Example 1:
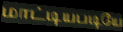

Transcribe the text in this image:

மாட்டியபடியே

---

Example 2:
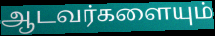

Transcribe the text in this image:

ஆடவர்களையும்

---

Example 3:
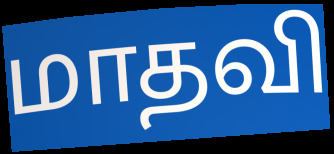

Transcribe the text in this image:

மாதவி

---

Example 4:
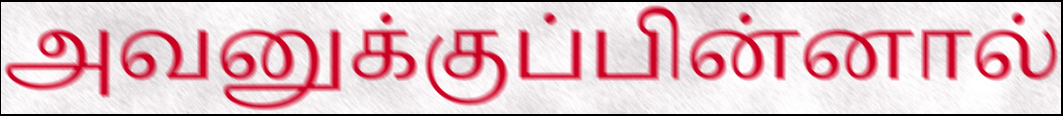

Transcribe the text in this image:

அவனுக்குப்பின்னால்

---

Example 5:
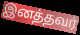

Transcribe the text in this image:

இனத்தவர்